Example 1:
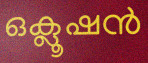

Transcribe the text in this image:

ഒക്ലൂഷൻ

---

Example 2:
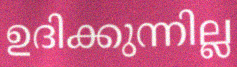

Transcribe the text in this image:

ഉദിക്കുന്നില്ല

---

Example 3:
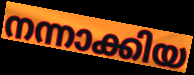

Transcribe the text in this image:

നന്നാക്കിയ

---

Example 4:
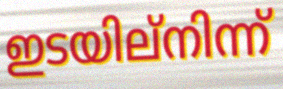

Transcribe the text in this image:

ഇടയില്നിന്ന്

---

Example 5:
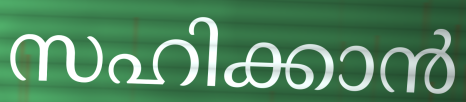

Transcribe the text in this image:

സഹിക്കാൻ